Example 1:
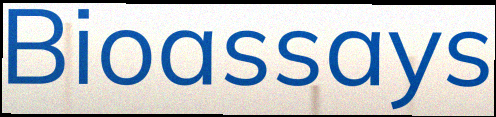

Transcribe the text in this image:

Bioassays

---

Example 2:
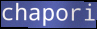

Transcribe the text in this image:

chapori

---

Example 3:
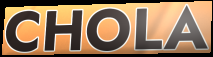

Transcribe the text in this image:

CHOLA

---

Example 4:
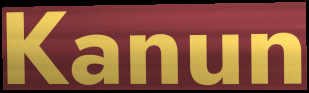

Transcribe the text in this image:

Kanun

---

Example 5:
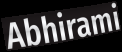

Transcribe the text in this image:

Abhirami